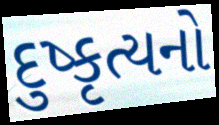
દુષ્કૃત્યનો